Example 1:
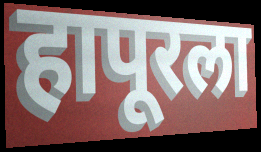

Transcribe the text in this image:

हापूरला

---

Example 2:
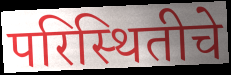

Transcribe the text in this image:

परिस्थितीचे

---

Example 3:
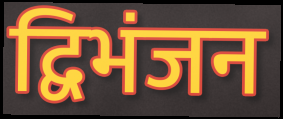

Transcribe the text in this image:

द्विभंजन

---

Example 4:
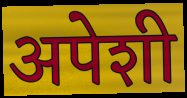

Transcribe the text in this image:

अपेशी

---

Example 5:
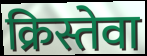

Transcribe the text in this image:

क्रिस्तेवा